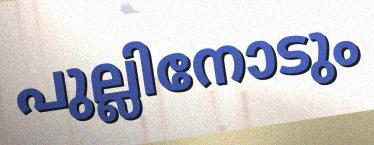
പുല്ലിനോടും